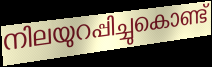
നിലയുറപ്പിച്ചുകൊണ്ട്